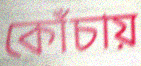
কোঁচায়